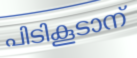
പിടികൂടാന്